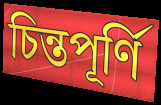
চিন্তপূৰ্ণি